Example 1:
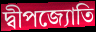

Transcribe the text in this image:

দ্বীপজ্যোতি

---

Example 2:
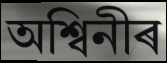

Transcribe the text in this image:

অশ্বিনীৰ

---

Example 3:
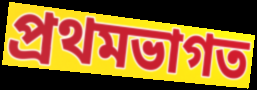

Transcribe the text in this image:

প্ৰথমভাগত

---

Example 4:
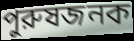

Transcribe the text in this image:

পুৰুষজনক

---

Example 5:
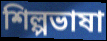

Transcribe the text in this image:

শিল্পভাষা